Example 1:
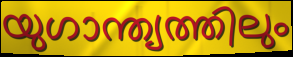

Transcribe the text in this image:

യുഗാന്ത്യത്തിലും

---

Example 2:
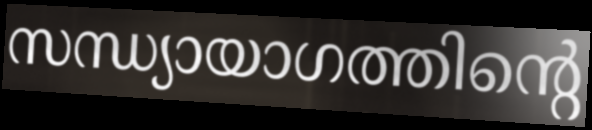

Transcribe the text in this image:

സന്ധ്യായാഗത്തിന്റെ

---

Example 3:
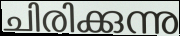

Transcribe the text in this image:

ചിരിക്കുന്നു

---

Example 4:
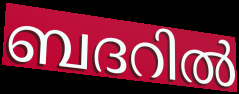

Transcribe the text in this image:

ബദറിൽ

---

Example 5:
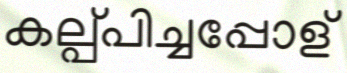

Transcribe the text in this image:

കല്പ്പിച്ചപ്പോള്